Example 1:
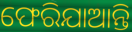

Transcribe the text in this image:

ଫେରିଯାଆନ୍ତି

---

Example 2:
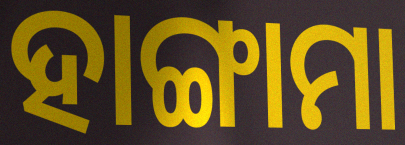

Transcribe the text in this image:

ହାଙ୍ଗାମା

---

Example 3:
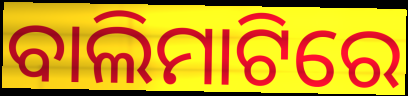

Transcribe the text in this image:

ବାଲିମାଟିରେ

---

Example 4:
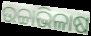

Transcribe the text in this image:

ଉଚ୍ଚାଭିଳାଷ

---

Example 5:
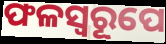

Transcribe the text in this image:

ଫଳସ୍ୱରୂପେ